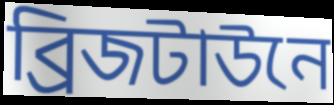
ব্রিজটাউনে